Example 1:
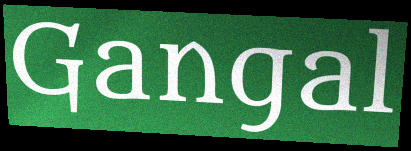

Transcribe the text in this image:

Gangal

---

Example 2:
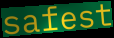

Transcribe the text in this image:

safest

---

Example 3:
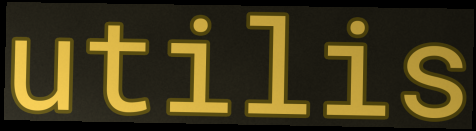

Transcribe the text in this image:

utilis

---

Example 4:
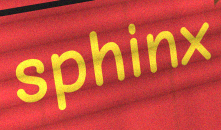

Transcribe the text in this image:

sphinx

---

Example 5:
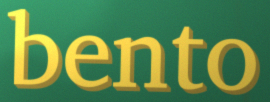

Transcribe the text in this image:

bento